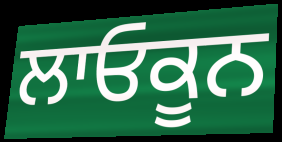
ਲਾਓਕੂਨ